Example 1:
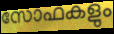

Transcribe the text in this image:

സോഫകളും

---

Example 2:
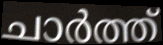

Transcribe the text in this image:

ചാർത്ത്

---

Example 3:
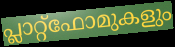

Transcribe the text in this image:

പ്ലാറ്റ്ഫോമുകളും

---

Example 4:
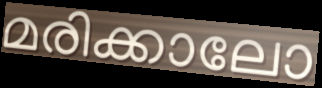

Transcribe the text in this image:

മരിക്കാലോ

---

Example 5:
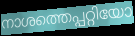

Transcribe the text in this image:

നാശത്തെപ്പറ്റിയോ